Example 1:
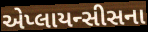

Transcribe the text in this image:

એપ્લાયન્સીસના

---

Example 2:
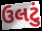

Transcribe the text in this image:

ઉલટું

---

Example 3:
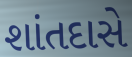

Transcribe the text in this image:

શાંતદાસે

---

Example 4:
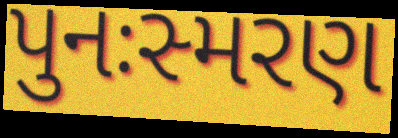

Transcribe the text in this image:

પુનઃસ્મરણ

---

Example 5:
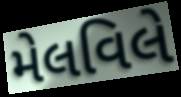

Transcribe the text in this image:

મેલવિલે